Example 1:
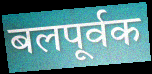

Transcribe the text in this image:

बलपूर्वक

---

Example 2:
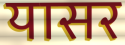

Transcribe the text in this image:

यासर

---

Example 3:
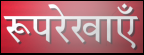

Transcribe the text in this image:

रूपरेखाएँ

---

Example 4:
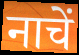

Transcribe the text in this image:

नाचें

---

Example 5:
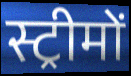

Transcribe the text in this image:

स्ट्रीमों